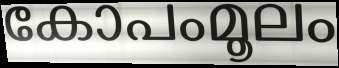
കോപംമൂലം